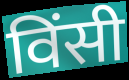
विंसी